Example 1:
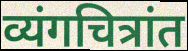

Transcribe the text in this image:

व्यंगचित्रांत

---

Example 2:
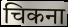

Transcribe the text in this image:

चिकना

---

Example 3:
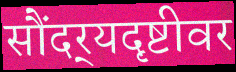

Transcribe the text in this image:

सौंदर्यदृष्टीवर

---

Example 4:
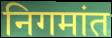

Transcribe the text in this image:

निगमांत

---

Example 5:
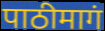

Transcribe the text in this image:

पाठीमागं